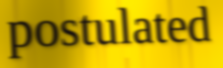
postulated